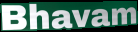
Bhavam